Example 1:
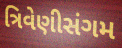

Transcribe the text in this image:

ત્રિવેણીસંગમ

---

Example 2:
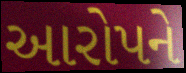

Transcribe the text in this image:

આરોપને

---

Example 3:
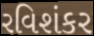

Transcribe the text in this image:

રવિશંકર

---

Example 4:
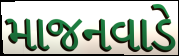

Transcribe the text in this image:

માજનવાડે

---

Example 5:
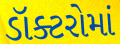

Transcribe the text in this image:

ડૉક્ટરોમાં